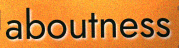
aboutness